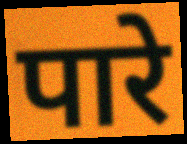
पारे